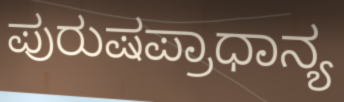
ಪುರುಷಪ್ರಾಧಾನ್ಯ